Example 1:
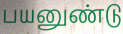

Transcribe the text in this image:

பயனுண்டு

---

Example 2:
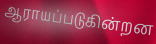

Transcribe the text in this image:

ஆராயப்படுகின்றன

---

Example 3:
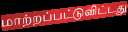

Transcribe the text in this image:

மாற்றப்பட்டுவிட்டது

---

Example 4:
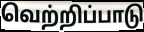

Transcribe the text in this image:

வெற்றிப்பாடு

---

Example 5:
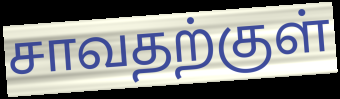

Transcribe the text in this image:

சாவதற்குள்